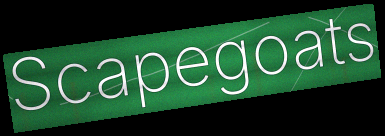
Scapegoats